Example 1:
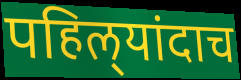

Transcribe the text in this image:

पहिल्यांदाच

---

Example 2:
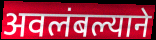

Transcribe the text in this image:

अवलंबल्याने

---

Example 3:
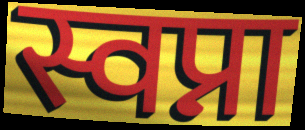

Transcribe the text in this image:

स्वप्ना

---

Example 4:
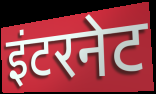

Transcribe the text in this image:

इंटरनेट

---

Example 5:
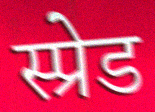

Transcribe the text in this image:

स्प्रेड